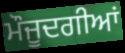
ਮੌਜੂਦਗੀਆਂ